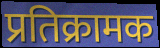
प्रतिक्रामक